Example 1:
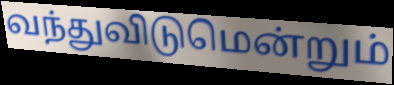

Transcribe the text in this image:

வந்துவிடுமென்றும்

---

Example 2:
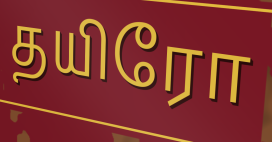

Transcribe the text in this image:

தயிரோ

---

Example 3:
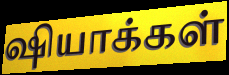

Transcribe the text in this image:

ஷியாக்கள்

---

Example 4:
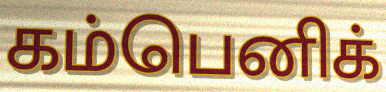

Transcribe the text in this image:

கம்பெனிக்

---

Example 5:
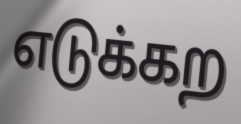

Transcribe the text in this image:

எடுக்கற